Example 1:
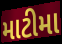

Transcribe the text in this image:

માટીમા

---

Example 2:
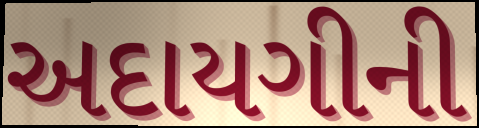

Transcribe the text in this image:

અદાયગીની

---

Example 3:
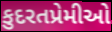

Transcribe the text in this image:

કુદરતપ્રેમીઓ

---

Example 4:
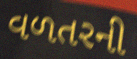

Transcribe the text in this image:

વળતરની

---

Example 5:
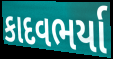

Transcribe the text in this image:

કાદવભર્યા